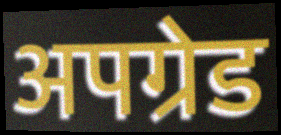
अपग्रेड